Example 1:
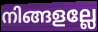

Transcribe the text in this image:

നിങ്ങളല്ലേ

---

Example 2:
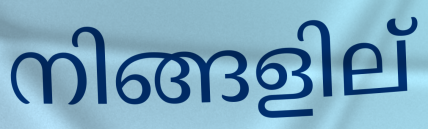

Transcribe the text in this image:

നിങ്ങളില്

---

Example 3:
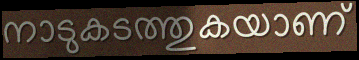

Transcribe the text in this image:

നാടുകടത്തുകയാണ്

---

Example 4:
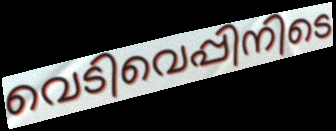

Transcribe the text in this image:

വെടിവെപ്പിനിടെ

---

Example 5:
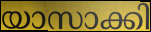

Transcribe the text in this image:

യാസാക്കി